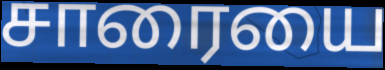
சாரையை